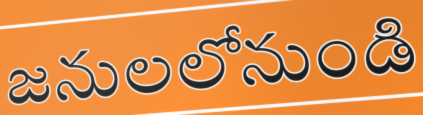
జనులలోనుండి